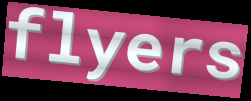
flyers